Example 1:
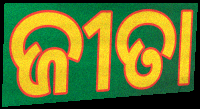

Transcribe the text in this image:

ଜୀତା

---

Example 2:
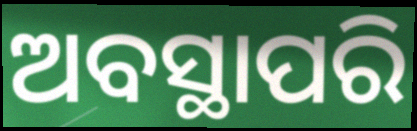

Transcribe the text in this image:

ଅବସ୍ଥାପରି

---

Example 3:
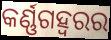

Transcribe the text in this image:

କର୍ଣ୍ଣଗହ୍ୱରର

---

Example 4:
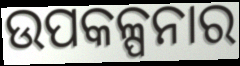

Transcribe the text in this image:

ଉପକଳ୍ପନାର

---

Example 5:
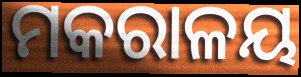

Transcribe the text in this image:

ମକରାଳୟ